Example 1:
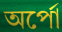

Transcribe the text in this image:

অর্পো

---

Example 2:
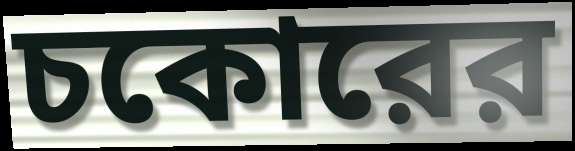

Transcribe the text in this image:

চকোরের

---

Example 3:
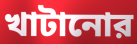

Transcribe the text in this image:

খাটানোর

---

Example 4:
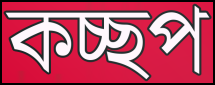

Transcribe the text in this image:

কচ্ছপ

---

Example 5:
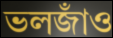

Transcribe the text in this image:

ভলজাঁও